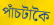
পাঁচটাকৈ